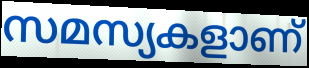
സമസ്യകളാണ്